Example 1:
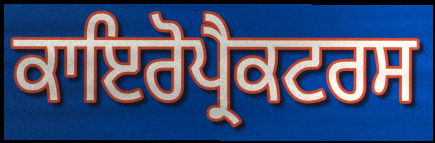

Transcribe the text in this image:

ਕਾਇਰੋਪ੍ਰੈਕਟਰਸ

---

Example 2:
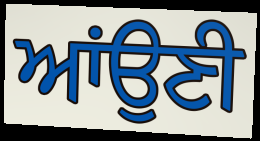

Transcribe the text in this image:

ਆਂਉਣੀ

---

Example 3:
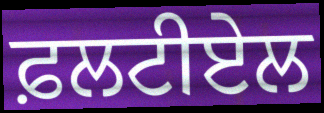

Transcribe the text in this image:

ਫ਼ਲਟੀਏਲ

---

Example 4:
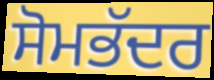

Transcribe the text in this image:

ਸੋਮਭੱਦਰ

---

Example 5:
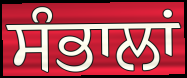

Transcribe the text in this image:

ਸੰਭਾਲਾਂ